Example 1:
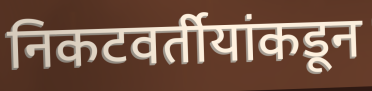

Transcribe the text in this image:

निकटवर्तीयांकडून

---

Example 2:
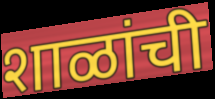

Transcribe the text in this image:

शाळांची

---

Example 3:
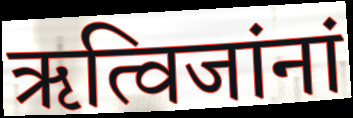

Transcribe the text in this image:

ऋत्विजांनां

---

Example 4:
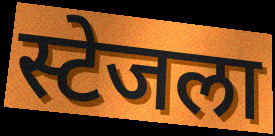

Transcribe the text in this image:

स्टेजला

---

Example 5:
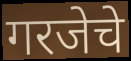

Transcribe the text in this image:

गरजेचे